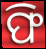
ଫି